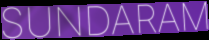
SUNDARAM